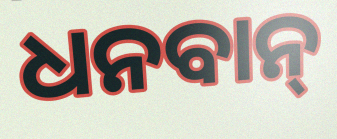
ଧନବାନ୍